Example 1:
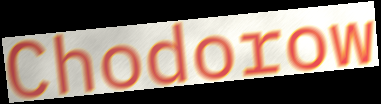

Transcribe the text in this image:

Chodorow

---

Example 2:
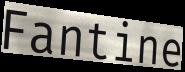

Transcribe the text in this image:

Fantine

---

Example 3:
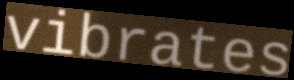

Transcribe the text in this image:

vibrates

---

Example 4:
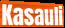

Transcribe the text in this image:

Kasauli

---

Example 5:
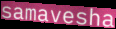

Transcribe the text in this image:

samavesha